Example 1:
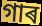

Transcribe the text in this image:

গাৰ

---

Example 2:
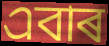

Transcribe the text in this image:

এবাৰ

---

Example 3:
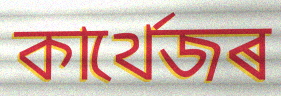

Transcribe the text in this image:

কাৰ্থেজৰ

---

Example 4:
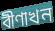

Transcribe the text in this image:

বীণাখন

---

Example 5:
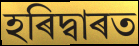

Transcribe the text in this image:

হৰিদ্বাৰত